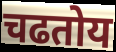
चढतोय